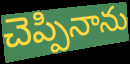
చెప్పినాను